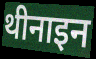
थीनाइन